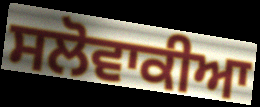
ਸਲੋਵਾਕੀਆ